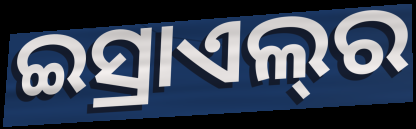
ଇସ୍ରାଏଲ୍‌ର